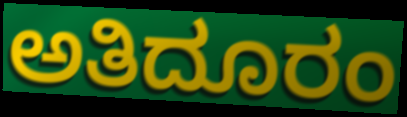
ಅತಿದೂರಂ